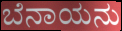
ಬೆನಾಯನು